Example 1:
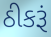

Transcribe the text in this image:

ઠીકરૂં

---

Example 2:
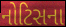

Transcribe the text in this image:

નોટિસના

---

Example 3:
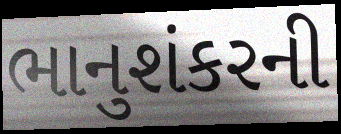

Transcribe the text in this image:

ભાનુશંકરની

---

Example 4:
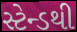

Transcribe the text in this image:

સ્ટેન્ડથી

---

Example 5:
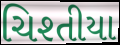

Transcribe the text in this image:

ચિશ્તીયા